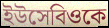
ইউসেবিওকে